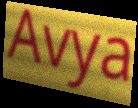
Avya